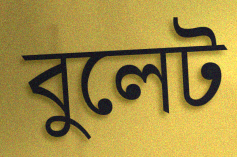
বুলেট